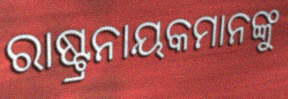
ରାଷ୍ଟ୍ରନାୟକମାନଙ୍କୁ